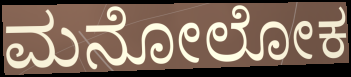
ಮನೋಲೋಕ